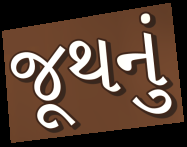
જૂથનું